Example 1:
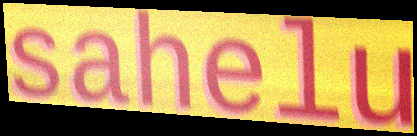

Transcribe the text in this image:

sahelu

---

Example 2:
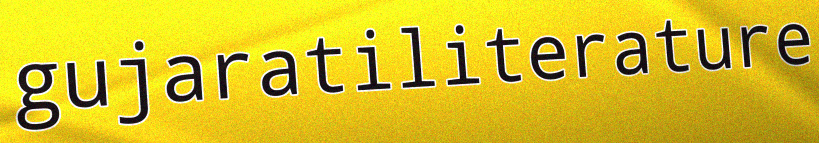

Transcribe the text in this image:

gujaratiliterature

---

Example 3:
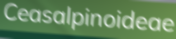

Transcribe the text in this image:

Ceasalpinoideae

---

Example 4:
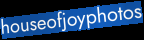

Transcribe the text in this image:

houseofjoyphotos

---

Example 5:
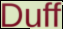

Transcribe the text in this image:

Duff